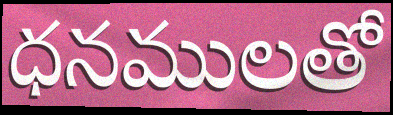
ధనములతో